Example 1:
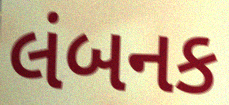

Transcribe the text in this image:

લંબનક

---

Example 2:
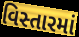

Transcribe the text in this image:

વિસ્તારમાં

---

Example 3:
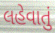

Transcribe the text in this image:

લહેવાતું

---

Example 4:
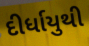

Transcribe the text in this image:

દીર્ધાયુથી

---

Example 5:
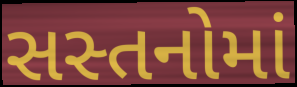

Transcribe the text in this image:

સસ્તનોમાં